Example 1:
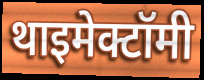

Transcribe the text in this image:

थाइमेक्टॉमी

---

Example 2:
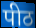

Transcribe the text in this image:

पीठ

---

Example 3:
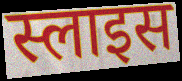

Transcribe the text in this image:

स्लाइस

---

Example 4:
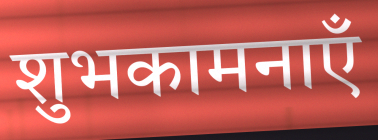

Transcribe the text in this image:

शुभकामनाएँ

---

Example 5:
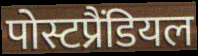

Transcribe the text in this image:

पोस्टप्रैंडियल